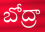
బోద్రా